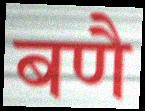
बणै